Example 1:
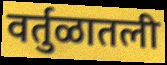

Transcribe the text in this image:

वर्तुळातली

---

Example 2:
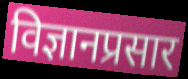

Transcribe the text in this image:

विज्ञानप्रसार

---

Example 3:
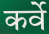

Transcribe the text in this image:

कर्वे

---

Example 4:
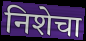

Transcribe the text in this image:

निशेचा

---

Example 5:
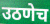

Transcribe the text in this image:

उठणेच